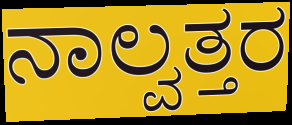
ನಾಲ್ವತ್ತರ